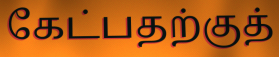
கேட்பதற்குத்